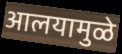
आलयामुळे